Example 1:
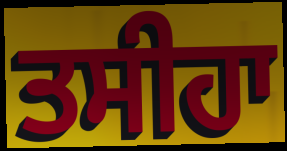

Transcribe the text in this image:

ਤਸੀਹਾ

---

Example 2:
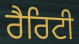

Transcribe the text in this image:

ਰੈਰਿਟੀ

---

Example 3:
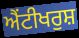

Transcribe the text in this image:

ਐਂਟੀਖਰੁਸ਼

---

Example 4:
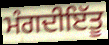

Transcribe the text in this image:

ਮੰਗਦੀਇੱਤੂ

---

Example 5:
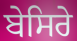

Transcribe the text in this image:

ਬੇਸਿਰੇ